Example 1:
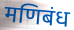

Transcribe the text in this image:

मणिबंध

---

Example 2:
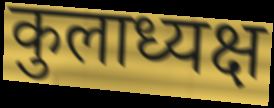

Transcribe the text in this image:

कुलाध्यक्ष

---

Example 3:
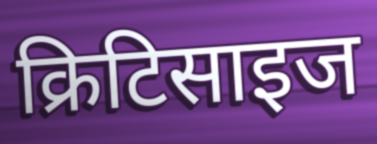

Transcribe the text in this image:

क्रिटिसाइज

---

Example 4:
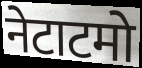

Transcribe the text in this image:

नेटाटमो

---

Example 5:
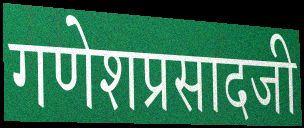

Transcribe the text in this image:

गणेशप्रसादजी